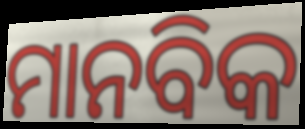
ମାନବିକ